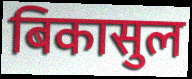
बिकासुल